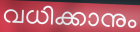
വധിക്കാനും